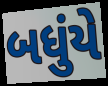
બધુંયે